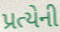
પ્રત્યેની